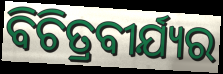
ବିଚିତ୍ରବୀର୍ଯ୍ୟର